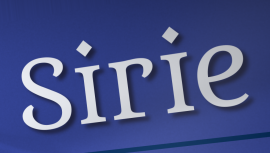
Sirie